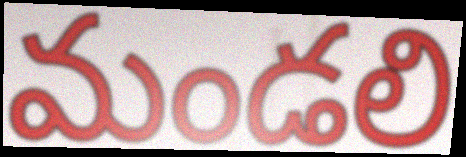
మండలి